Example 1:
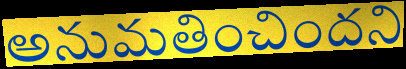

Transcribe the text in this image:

అనుమతించిందని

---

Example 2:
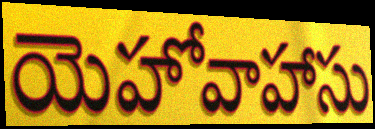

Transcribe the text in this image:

యెహోవాహాసు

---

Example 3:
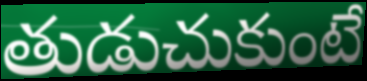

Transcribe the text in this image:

తుడుచుకుంటే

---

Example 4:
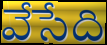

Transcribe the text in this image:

వేసేది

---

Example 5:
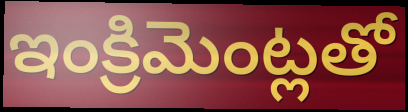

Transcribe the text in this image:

ఇంక్రిమెంట్లతో